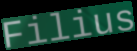
Filius